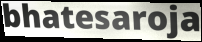
bhatesaroja